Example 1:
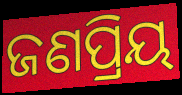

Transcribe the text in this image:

ଜଣପ୍ରିୟ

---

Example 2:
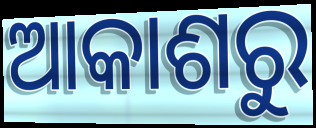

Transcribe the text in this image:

ଆକାଶରୁ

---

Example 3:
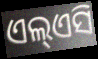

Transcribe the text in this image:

ଏଲ୍ଏସି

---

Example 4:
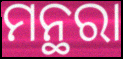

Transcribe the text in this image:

ମନ୍ଥରା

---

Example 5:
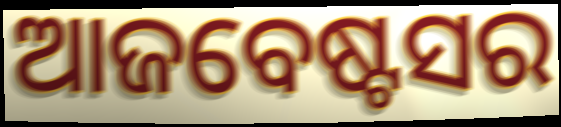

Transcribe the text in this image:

ଆଜବେଷ୍ଟସର